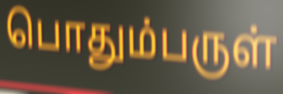
பொதும்பருள்